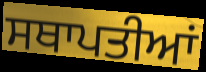
ਸਥਾਪਤੀਆਂ